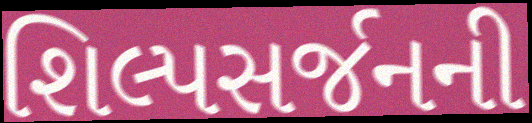
શિલ્પસર્જનની